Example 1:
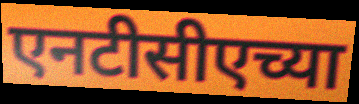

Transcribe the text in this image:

एनटीसीएच्या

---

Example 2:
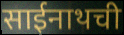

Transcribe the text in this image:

साईनाथची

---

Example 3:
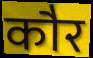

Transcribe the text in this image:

कौर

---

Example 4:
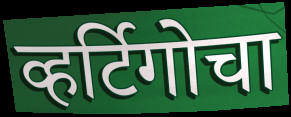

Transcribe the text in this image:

व्हर्टिगोचा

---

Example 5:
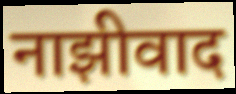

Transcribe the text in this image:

नाझीवाद